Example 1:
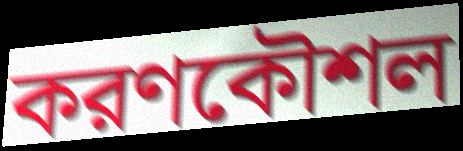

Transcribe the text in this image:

করণকৌশল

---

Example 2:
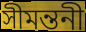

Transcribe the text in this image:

সীমন্তনী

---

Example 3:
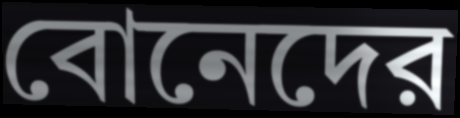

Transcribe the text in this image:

বোনেদের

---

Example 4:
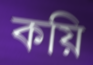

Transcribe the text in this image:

কয়ি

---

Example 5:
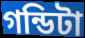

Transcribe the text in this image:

গন্ডিটা